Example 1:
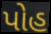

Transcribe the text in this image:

પોહ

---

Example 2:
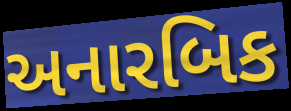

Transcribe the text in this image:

અનારબિક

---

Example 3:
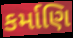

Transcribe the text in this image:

કર્માણિ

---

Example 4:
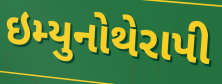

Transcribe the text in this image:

ઇમ્યુનોથેરાપી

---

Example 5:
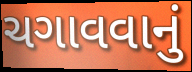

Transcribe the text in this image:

ચગાવવાનું